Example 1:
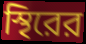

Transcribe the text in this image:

স্থিরের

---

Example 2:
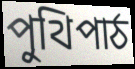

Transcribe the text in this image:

পুথিপাঠ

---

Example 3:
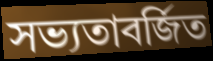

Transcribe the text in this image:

সভ্যতাবর্জিত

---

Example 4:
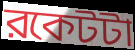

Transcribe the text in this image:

রকেটটা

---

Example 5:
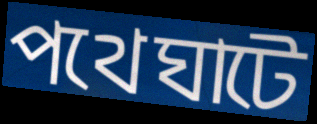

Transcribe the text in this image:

পথেঘাটে